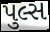
પુલ્સ